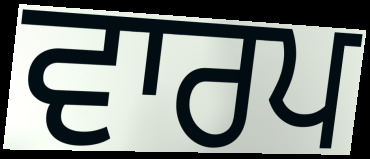
ਵਾਰਪ